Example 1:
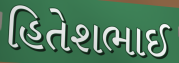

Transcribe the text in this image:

હિતેશભાઈ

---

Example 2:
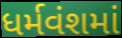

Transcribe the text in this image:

ધર્મવંશમાં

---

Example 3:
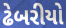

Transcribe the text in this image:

ઢેબરીયો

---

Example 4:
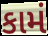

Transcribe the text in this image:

કામં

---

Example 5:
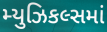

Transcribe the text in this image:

મ્યુઝિકલ્સમાં